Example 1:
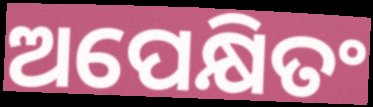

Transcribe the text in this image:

ଅପେକ୍ଷିତଂ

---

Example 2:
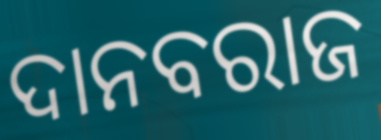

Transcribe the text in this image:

ଦାନବରାଜ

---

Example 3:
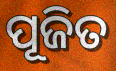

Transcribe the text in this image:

ପୂଜିତ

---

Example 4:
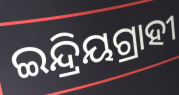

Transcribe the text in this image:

ଇନ୍ଦ୍ରିୟଗ୍ରାହୀ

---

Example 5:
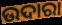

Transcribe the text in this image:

ଉଦାରା